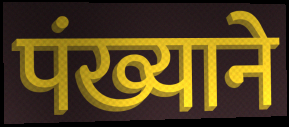
पंख्याने